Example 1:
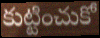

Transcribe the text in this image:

కుట్టించుకో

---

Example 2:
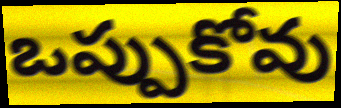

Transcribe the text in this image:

ఒప్పుకోవు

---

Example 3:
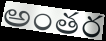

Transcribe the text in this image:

అంతర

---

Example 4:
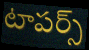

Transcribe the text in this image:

టాపర్స్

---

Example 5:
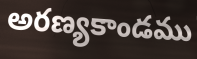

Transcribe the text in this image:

అరణ్యకాండము